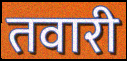
तवारी